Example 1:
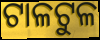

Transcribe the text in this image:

ଟାଳଟୁଳ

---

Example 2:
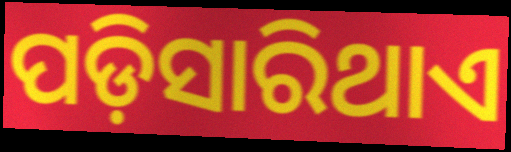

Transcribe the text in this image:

ପଡ଼ିସାରିଥାଏ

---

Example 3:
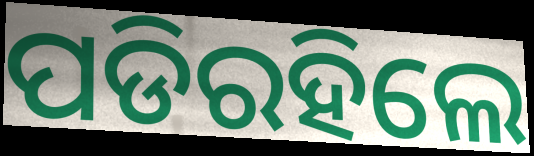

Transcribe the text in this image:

ପଡିରହିଲେ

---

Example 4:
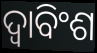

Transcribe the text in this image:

ଦ୍ଵାବିଂଶ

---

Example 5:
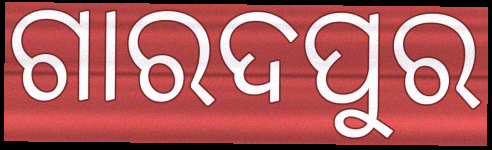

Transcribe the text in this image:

ଗାରଦପୁର